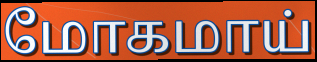
மோகமாய்